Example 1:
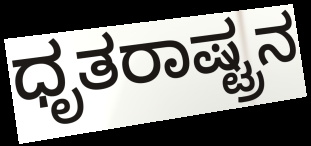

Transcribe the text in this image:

ಧೃತರಾಷ್ಟ್ರನ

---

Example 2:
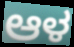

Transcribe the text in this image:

ಆಳ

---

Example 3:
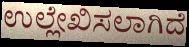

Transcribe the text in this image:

ಉಲ್ಲೇಖಿಸಲಾಗಿದೆ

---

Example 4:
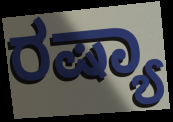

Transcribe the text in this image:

ರಷ್ಯಾ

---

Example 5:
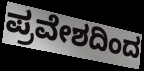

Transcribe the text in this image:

ಪ್ರವೇಶದಿಂದ